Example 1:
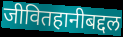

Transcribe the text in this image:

जीवितहानीबद्दल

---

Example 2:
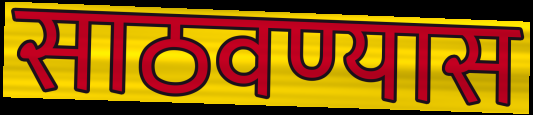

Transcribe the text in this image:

साठवण्यास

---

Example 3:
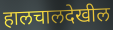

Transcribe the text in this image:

हालचालदेखील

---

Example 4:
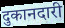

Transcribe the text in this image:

दुकानदारी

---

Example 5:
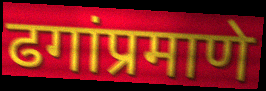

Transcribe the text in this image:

ढगांप्रमाणे